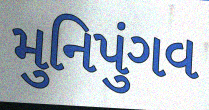
મુનિપુંગવ